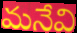
మనేవి